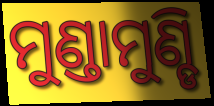
ମୁଣ୍ଡାମୁଣ୍ଡି